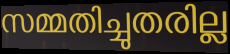
സമ്മതിച്ചുതരില്ല